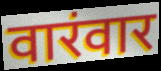
वारंवार